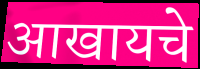
आखायचे